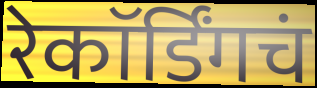
रेकॉर्डिंगचं